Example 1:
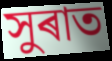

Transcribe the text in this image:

সুৰাত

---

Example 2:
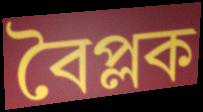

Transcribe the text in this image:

বৈপ্লক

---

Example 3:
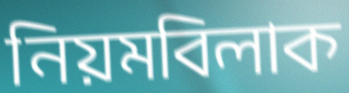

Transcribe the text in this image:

নিয়মবিলাক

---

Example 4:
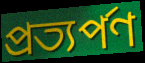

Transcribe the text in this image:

প্ৰত্যৰ্পণ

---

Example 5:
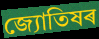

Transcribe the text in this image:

জ্যোতিষৰ